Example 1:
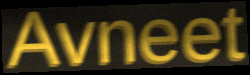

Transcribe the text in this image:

Avneet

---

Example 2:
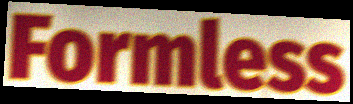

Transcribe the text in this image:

Formless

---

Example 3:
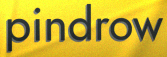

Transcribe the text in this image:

pindrow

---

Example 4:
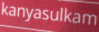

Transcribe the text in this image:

kanyasulkam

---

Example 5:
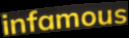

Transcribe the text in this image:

infamous